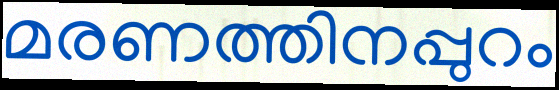
മരണത്തിനപ്പുറം